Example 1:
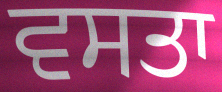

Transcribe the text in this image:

ਵਸਤਾ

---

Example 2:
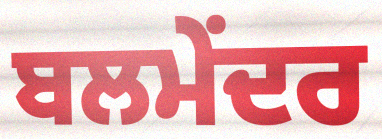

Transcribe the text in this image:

ਬਲਮੇਂਦਰ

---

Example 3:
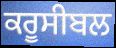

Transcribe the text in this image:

ਕਰੂਸੀਬਲ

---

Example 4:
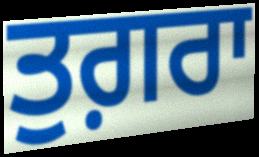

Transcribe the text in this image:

ਤੁਗ਼ਰਾ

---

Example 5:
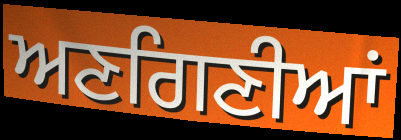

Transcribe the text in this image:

ਅਣਗਿਣੀਆਂ